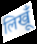
लिखूंँ